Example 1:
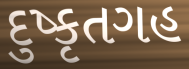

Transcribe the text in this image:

દુષ્કૃતગહ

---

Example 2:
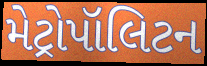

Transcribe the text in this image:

મેટ્રોપૉલિટન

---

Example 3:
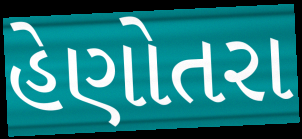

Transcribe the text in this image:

હેણોતરા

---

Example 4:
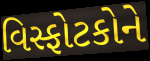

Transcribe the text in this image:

વિસ્ફોટકોને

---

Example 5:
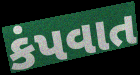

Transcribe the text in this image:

કંપવાત